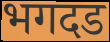
भगदड